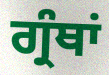
ਗ੍ਰੰਥਾਂ